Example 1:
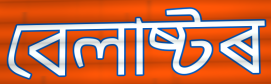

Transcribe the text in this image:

বেলাষ্টৰ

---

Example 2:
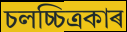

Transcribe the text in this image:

চলচ্চিত্ৰকাৰ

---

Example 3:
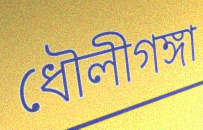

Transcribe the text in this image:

ধৌলীগঙ্গা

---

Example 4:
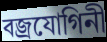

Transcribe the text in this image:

বজ্ৰযোগিনী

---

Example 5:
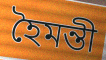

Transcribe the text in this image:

হৈমন্তী